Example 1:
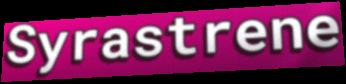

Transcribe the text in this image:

Syrastrene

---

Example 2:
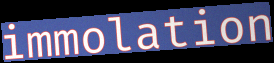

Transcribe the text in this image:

immolation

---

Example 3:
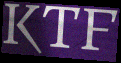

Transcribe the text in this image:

KTF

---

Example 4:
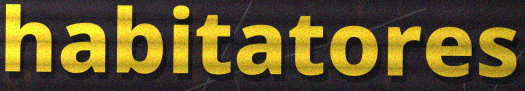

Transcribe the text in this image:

habitatores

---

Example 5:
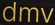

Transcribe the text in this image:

dmv